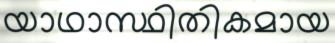
യാഥാസ്ഥിതികമായ